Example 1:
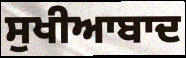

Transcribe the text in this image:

ਸੁਖੀਆਬਾਦ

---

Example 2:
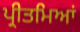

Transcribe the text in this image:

ਪ੍ਰੀਤਮਿਆਂ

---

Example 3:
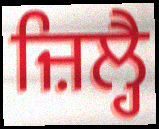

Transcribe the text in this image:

ਜ਼ਿਲ੍ਹੈ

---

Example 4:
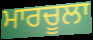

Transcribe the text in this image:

ਮਾਰਚੂਲਾ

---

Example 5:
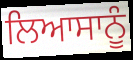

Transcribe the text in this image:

ਲਿਆਸਾਨੂੰ